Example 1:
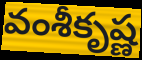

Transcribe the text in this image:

వంశీకృష్ణ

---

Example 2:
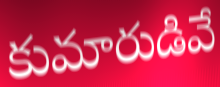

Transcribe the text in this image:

కుమారుడివే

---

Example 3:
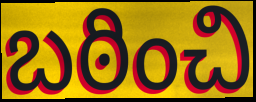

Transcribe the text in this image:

బఠించి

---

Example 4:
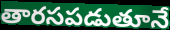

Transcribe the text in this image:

తారసపడుతూనే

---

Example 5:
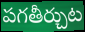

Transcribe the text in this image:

పగతీర్చుట